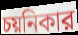
চয়নিকার